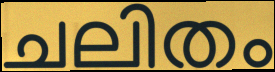
ചലിതം